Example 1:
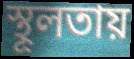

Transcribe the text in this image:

স্থূলতায়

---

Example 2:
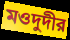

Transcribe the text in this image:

মওদুদীর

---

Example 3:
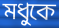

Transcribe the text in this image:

মধুকে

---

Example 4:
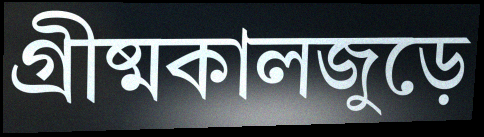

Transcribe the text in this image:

গ্রীষ্মকালজুড়ে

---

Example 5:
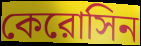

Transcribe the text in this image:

কেরোসিন